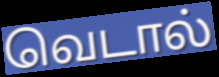
வெடால்